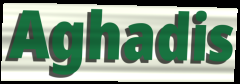
Aghadis